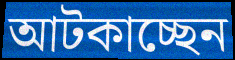
আটকাচ্ছেন